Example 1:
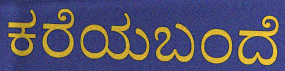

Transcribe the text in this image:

ಕರೆಯಬಂದೆ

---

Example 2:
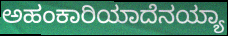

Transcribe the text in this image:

ಅಹಂಕಾರಿಯಾದೆನಯ್ಯಾ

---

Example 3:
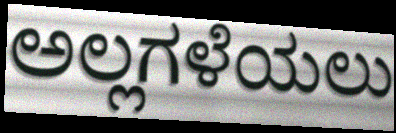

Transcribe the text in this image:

ಅಲ್ಲಗಳೆಯಲು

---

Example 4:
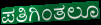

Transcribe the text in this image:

ಪತಿಗಿಂತಲೂ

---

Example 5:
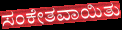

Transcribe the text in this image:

ಸಂಕೇತವಾಯಿತು